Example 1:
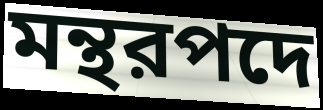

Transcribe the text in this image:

মন্থরপদে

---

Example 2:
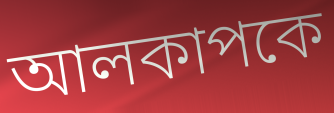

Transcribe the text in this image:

আলকাপকে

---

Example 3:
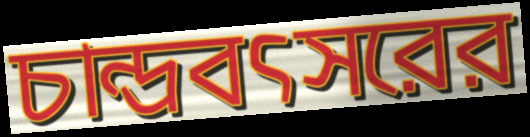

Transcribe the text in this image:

চান্দ্রবৎসরের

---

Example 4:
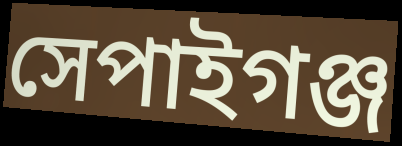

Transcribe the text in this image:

সেপাইগঞ্জ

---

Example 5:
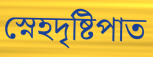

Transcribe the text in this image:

স্নেহদৃষ্টিপাত